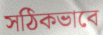
সঠিকভাবে